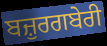
ਬਜ਼ੁਰਗਬੇਰੀ